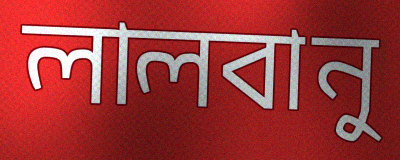
লালবানু